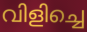
വിളിച്ചെ